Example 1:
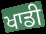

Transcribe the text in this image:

ਖਾਡੀ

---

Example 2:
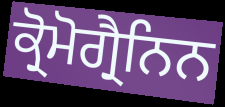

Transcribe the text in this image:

ਕ੍ਰੋਮੋਗ੍ਰੈਨਿਨ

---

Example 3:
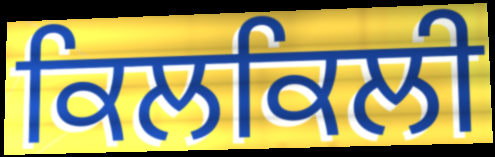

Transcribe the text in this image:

ਕਿਲਕਿਲੀ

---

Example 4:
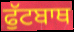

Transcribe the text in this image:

ਫੁੱਟਬਾਥ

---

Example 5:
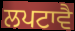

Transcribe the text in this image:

ਲਪਟਾਵੈ